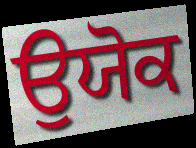
ਉਯੋਕ